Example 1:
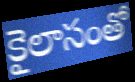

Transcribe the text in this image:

కైలాసంతో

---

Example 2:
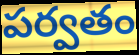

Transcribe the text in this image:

పర్వతం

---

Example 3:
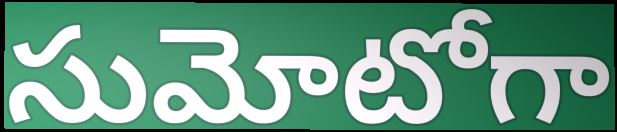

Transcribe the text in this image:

సుమోటోగా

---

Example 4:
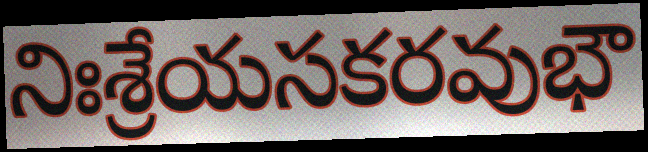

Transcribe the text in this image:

నిఃశ్రేయసకరవుభౌ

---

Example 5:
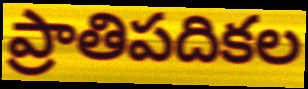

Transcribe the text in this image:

ప్రాతిపదికల